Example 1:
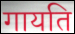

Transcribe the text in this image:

गायति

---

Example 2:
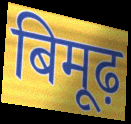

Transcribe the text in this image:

बिमूढ़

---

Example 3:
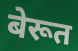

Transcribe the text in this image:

बेरूत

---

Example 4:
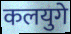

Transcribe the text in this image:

कलयुगे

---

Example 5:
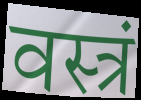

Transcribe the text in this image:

वस्त्रं